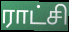
ராட்சி